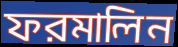
ফরমালিন